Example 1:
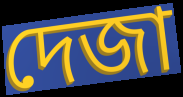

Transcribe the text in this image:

দেজা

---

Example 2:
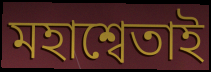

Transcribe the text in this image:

মহাশ্বেতাই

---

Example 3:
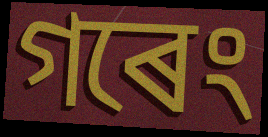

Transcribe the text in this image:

গৰেং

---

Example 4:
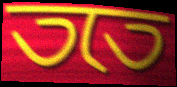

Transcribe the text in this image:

ততে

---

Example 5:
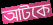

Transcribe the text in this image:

আটকে